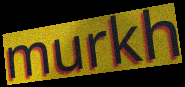
murkh